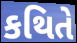
કથિતે